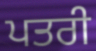
ਪਤਰੀ